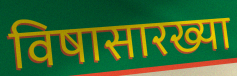
विषासारख्या